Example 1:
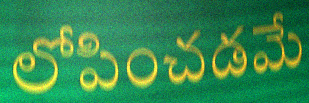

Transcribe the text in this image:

లోపించడమే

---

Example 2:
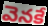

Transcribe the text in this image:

వెనకే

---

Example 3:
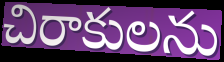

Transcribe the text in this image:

చిరాకులను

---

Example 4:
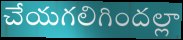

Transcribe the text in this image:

చేయగలిగిందల్లా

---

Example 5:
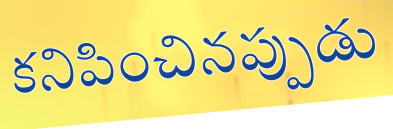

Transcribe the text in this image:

కనిపించినప్పుడు